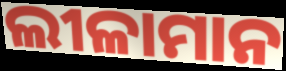
ଲୀଳାମାନ